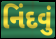
નિંદવું